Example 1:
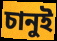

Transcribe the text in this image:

চানুই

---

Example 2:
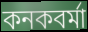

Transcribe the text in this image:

কনকবর্মা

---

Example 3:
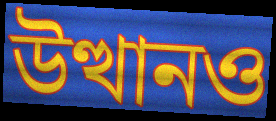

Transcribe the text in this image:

উত্থানও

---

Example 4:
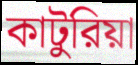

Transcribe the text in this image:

কাটুরিয়া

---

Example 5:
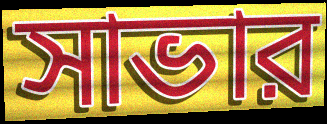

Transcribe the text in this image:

সাভার